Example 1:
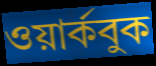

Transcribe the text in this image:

ওয়ার্কবুক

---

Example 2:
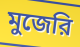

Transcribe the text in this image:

মুজেরি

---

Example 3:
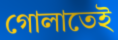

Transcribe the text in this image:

গোলাতেই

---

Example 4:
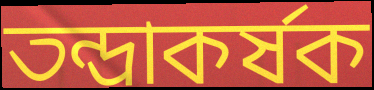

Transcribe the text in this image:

তন্দ্রাকর্ষক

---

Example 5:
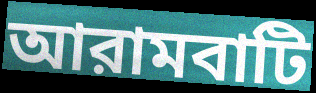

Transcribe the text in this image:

আরামবাটি